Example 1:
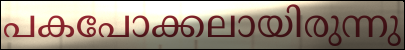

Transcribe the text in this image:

പകപോക്കലായിരുന്നു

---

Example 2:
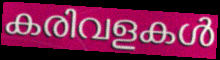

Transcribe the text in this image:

കരിവളകൾ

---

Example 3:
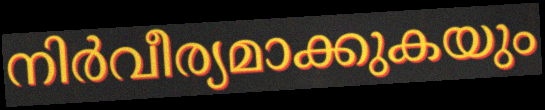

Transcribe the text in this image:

നിർവീര്യമാക്കുകയും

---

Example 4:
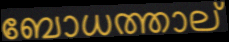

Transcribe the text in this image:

ബോധത്താല്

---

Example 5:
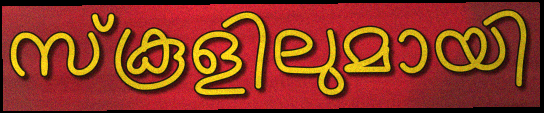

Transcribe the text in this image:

സ്കൂളിലുമായി